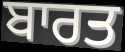
ਬਾਰਤ